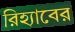
রিহ্যাবের